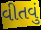
વીતવું